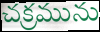
చక్రమును